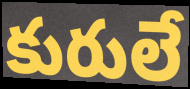
కురులే